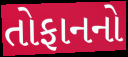
તોફાનનો